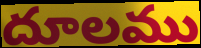
దూలము